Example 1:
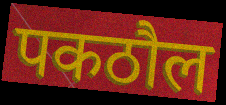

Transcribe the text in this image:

पकठौल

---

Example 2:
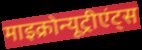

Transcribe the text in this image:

माइक्रोन्यूट्रीएंट्स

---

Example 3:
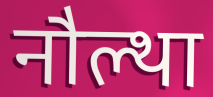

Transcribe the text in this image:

नौल्था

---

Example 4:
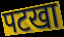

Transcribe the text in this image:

पटखा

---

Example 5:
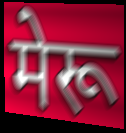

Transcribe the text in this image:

मेरू